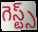
గెస్ట్స్